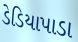
ડેડિયાપાડા